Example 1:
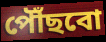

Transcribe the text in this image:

পৌঁছবো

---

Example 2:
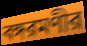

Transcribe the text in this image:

বঙ্গরমণীর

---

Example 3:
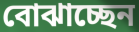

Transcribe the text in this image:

বোঝাচ্ছেন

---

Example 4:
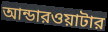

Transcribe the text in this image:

আন্ডারওয়াটার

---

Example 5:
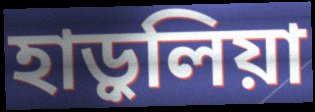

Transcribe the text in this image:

হাড়ুলিয়া